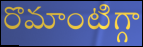
రొమాంటిగ్గా